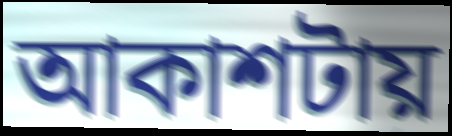
আকাশটায়